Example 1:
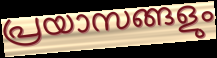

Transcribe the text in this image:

പ്രയാസങ്ങളും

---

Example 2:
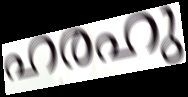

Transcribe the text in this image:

ഹരഹു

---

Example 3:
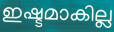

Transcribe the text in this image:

ഇഷ്ടമാകില്ല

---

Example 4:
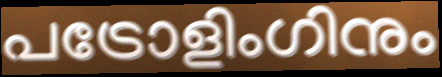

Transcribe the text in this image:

പട്രോളിംഗിനും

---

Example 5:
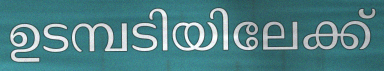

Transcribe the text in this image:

ഉടമ്പടിയിലേക്ക്